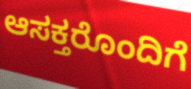
ಆಸಕ್ತರೊಂದಿಗೆ